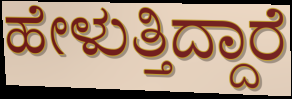
ಹೇಳುತ್ತಿದ್ದಾರೆ